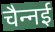
चैन्नई